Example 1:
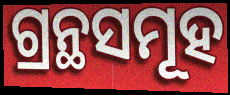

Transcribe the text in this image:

ଗ୍ରନ୍ଥସମୂହ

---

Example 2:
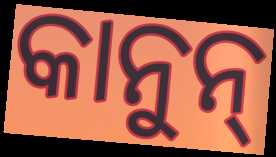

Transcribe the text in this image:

କାନୁନ୍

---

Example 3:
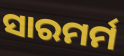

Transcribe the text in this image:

ସାରମର୍ମ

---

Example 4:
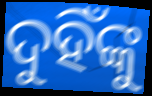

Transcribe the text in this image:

ଦୁହିଁଙ୍କୁ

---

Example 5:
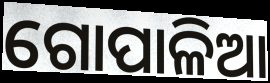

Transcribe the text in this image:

ଗୋପାଳିଆ